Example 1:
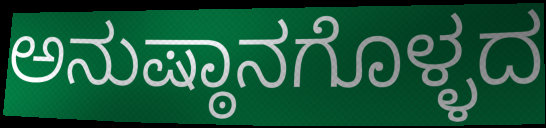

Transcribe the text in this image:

ಅನುಷ್ಠಾನಗೊಳ್ಳದ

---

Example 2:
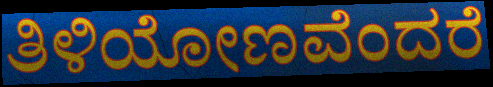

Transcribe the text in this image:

ತಿಳಿಯೋಣವೆಂದರೆ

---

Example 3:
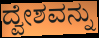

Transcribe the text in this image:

ದ್ವೇಶವನ್ನು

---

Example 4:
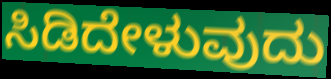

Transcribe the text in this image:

ಸಿಡಿದೇಳುವುದು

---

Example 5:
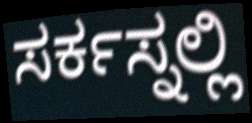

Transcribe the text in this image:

ಸರ್ಕಸ್ನಲ್ಲಿ